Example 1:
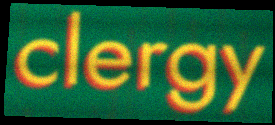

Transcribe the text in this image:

clergy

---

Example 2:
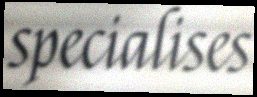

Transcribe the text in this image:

specialises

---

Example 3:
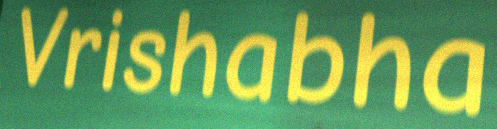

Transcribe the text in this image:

Vrishabha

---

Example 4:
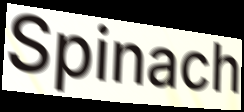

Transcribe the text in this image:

Spinach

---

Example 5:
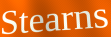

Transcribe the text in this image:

Stearns